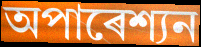
অপাৰেশ্যন